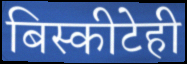
बिस्कीटेही